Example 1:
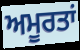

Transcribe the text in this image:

ਅਮੂਰਤਾਂ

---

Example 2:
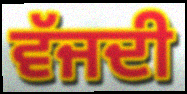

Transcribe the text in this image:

ਵੱਜਦੀ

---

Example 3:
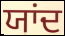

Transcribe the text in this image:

ਯਾਂਦ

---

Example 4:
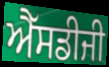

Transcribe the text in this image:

ਐੱਸਡੀਜੀ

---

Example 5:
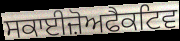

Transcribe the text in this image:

ਸਕਾਈਜ਼ੋਅਫੈਕਟਿਵ